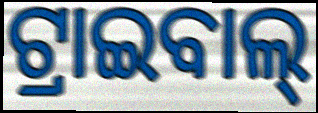
ଟ୍ରାଇବାଲ୍